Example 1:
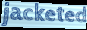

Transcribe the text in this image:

jacketed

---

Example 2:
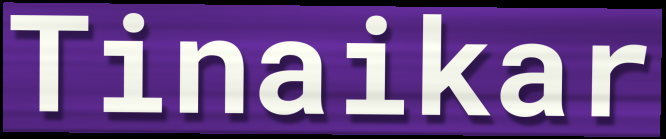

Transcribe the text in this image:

Tinaikar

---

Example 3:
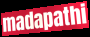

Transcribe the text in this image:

madapathi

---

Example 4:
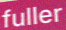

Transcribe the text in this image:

fuller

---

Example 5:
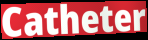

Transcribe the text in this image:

Catheter